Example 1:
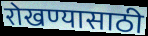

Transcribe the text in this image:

रोखण्यासाठी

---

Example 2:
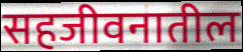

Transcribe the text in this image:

सहजीवनातील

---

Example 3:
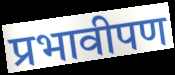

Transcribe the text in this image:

प्रभावीपण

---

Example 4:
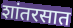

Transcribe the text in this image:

शांतरसात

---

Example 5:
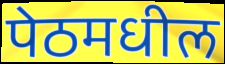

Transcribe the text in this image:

पेठमधील